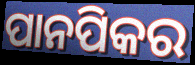
ପାନପିକର